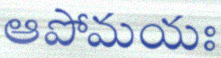
ఆపోమయః